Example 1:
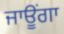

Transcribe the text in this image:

ਜਾਊਂਗਾ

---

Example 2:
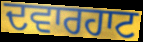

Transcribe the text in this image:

ਦਵਾਰਹਾਟ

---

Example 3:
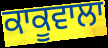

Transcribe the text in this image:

ਕਾਕੂਵਾਲਾ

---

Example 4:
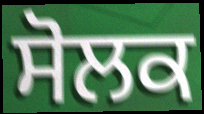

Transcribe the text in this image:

ਸੋਲਕ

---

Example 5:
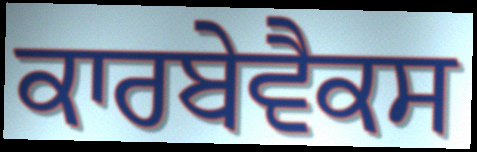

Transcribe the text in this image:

ਕਾਰਬੇਵੈਕਸ